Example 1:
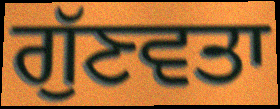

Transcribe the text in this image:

ਗੁੱਣਵਤਾ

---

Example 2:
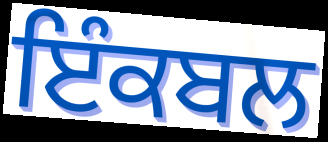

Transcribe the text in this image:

ਇੰਕਬਲ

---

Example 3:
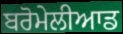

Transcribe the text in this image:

ਬਰੋਮੇਲੀਆਡ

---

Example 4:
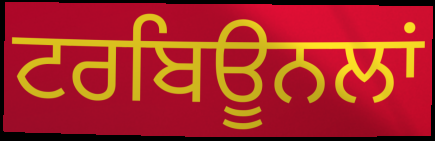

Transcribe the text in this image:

ਟਰਬਿਊਨਲਾਂ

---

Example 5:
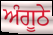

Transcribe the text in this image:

ਅੰਗੂਠੇ